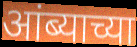
आंब्याच्या